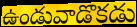
ఉండువాడొకడు